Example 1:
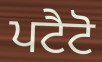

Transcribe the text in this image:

ਪਟੈਟੋ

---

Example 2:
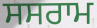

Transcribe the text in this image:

ਸਸਰਾਮ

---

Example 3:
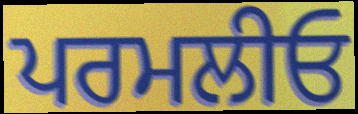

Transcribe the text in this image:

ਪਰਮਲੀਓ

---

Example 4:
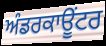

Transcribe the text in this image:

ਅੰਡਰਕਾਊਂਟਰ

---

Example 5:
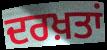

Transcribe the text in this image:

ਦਰਖ਼ਤਾਂ